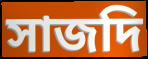
সাজদি